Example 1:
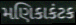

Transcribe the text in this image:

મણિકાકંટક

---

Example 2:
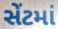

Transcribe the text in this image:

સેંટમાં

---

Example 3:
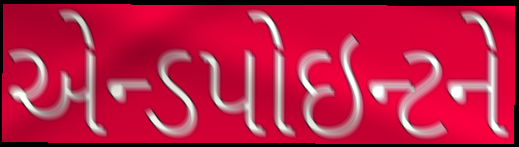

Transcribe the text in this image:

એન્ડપોઇન્ટને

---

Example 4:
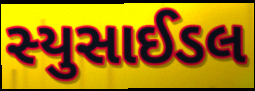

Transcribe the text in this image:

સ્યુસાઈડલ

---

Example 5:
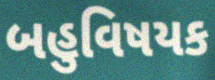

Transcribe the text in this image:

બહુવિષયક